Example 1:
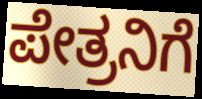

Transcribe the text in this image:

ಪೇತ್ರನಿಗೆ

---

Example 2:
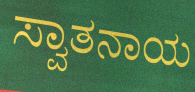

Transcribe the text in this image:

ಸ್ವಾತನಾಯ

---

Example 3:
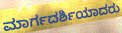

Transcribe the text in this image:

ಮಾರ್ಗದರ್ಶಿಯಾದರು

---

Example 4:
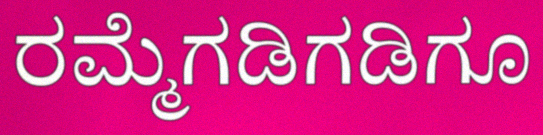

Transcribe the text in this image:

ರಮ್ಮೆಗಡಿಗಡಿಗೂ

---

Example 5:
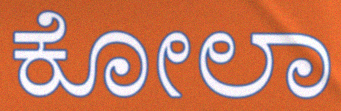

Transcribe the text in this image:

ಕೋಲಾ